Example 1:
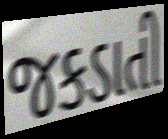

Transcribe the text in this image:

જકડાતી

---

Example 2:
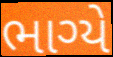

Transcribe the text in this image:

ભાગ્યે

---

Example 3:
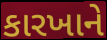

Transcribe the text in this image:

કારખાને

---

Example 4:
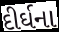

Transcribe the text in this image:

દીર્ઘના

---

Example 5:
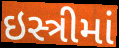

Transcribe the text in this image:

ઇસ્ત્રીમાં